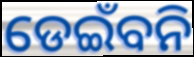
ଡେଇଁବନି